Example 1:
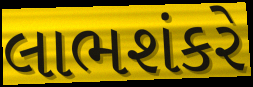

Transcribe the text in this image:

લાભશંકરે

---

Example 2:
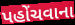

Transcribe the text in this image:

પહોંચવાના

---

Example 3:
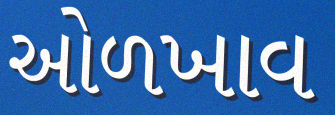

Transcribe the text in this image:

ઓળખાવ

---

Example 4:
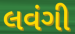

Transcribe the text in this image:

લવંગી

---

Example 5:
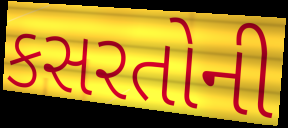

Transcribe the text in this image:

કસરતોની